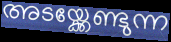
അടയ്ക്കേണ്ടുന്ന